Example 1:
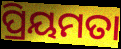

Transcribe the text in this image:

ପ୍ରିୟମତା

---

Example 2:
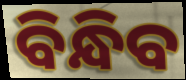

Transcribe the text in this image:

ବିନ୍ଧିବ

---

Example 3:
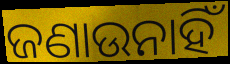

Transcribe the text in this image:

ଜଣାଉନାହିଁ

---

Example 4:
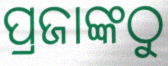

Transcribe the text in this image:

ପ୍ରଜାଙ୍କଠୁ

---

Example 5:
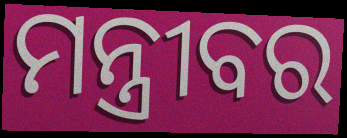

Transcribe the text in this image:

ମନ୍ତ୍ରୀବର